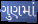
ગુણમાં